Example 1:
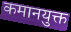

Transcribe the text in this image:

कमानयुक्त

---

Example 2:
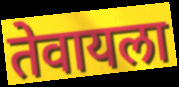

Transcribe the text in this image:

तेवायला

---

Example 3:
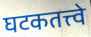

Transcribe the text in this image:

घटकतत्त्वे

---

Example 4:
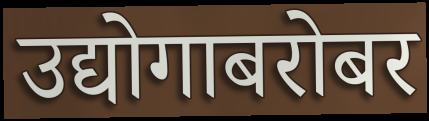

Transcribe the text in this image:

उद्योगाबरोबर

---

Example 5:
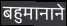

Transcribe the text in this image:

बहुमानाने